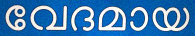
വേദമായ